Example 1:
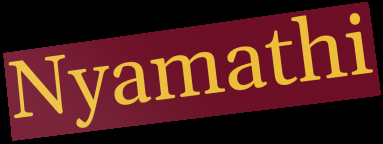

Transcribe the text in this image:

Nyamathi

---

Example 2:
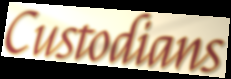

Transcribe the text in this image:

Custodians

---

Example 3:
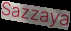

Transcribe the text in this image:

Sazzaya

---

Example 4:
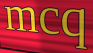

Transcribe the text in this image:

mcq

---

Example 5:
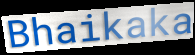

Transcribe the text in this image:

Bhaikaka